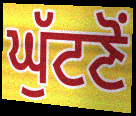
ਘੁੱਟਣੋਂ